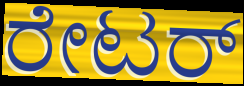
ರೇಟರ್